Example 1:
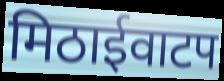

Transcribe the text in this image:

मिठाईवाटप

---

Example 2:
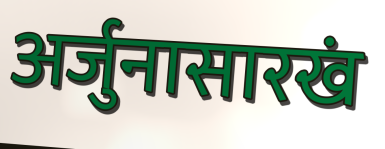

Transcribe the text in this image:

अर्जुनासारखं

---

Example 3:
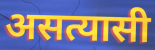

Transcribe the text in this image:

असत्यासी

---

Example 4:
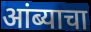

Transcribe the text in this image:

आंब्याचा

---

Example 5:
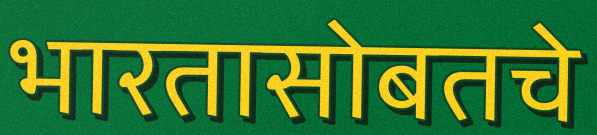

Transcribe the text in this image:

भारतासोबतचे